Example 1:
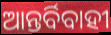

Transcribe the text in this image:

ଆନ୍ତର୍ବିବାହୀ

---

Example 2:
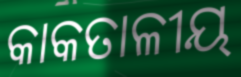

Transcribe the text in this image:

କାକତାଳୀୟ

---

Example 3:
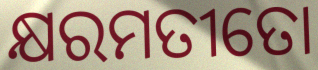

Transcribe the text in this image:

କ୍ଷରମତୀତୋ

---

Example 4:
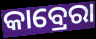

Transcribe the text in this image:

କାବ୍ରେରା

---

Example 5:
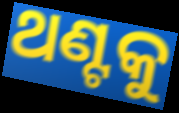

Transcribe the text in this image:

ଥଣ୍ଟକୁ